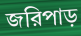
জরিপাড়